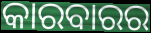
କାରବାରର